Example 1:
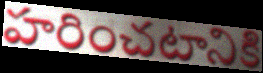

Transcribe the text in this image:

హరించటానికి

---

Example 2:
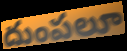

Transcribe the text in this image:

దుంపలూ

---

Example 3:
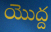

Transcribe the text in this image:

యొద్ద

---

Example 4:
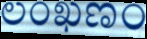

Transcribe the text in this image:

లంఖణం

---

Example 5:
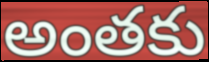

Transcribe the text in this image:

అంతకు